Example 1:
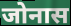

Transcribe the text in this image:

जोनास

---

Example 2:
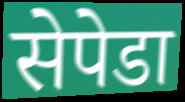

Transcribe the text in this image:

सेपेडा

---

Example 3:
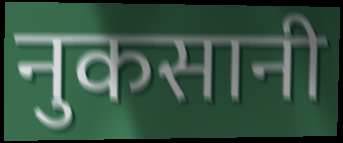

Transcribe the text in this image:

नुकसानी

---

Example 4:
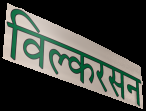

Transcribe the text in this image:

विल्करसन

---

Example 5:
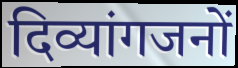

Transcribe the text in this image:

दिव्यांगजनों